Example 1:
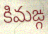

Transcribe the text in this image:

కిమఙ్గ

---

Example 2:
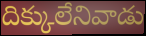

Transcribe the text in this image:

దిక్కులేనివాడు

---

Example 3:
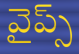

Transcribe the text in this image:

వైప్స్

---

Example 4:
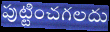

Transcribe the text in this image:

పుట్టించగలదు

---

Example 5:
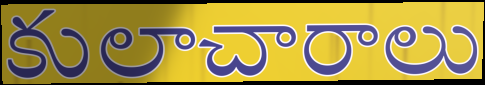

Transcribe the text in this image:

కులాచారాలు